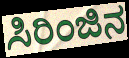
ಸಿರಿಂಜಿನ